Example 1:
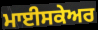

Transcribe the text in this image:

ਮਾਈਸਕੇਅਰ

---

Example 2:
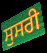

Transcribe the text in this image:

ਸੁਸਰੀ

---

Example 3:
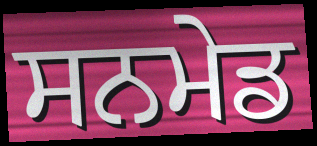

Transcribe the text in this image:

ਸਨਮੇਡ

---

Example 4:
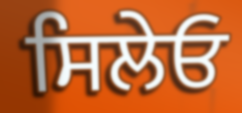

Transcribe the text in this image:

ਸਿਲੇਓ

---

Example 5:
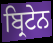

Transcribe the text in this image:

ਬ੍ਰਿਟੇਨ